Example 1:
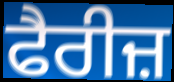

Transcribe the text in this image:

ਫੈਰੀਜ਼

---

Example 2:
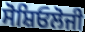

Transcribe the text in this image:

ਸੋਸ਼ਿਓਲੋਜੀ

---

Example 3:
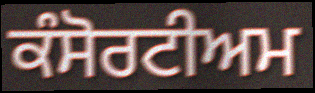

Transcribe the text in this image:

ਕੰਸੋਰਟੀਅਮ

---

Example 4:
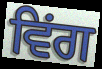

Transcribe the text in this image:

ਵਿਂਗ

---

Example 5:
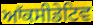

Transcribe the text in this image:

ਆੱਕਸੀਡੇਟਿਵ